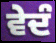
ਵੇਦੰ